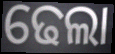
ଢେଲା